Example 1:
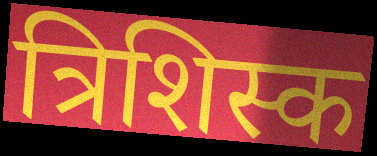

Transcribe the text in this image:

त्रिशिस्क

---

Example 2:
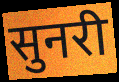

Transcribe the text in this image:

सुनरी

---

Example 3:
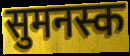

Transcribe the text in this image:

सुमनस्क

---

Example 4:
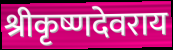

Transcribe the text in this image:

श्रीकृष्णदेवराय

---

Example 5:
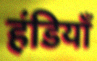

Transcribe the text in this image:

हंडियाँ